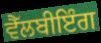
ਵੈੱਲਬੀਇੰਗ